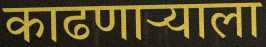
काढणार्‍याला